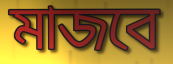
মাজবে